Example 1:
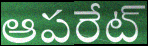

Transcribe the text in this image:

ఆపరేట్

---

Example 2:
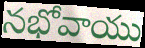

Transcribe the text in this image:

నభోవాయు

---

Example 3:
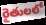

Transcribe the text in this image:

రైతులలో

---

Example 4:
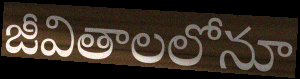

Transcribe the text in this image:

జీవితాలలోనూ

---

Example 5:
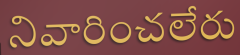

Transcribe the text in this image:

నివారించలేరు